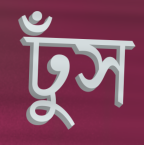
ঢুঁস